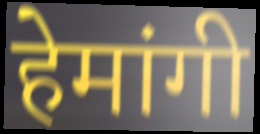
हेमांगी